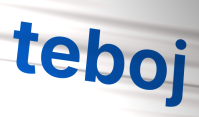
teboj